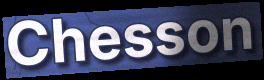
Chesson